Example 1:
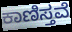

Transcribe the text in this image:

ಕಾಣಿಸ್ತವೆ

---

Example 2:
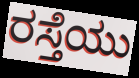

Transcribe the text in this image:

ರಸ್ತೆಯು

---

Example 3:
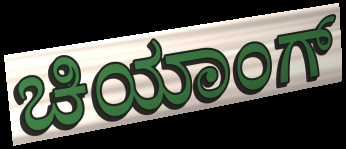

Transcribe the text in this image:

ಚಿಯಾಂಗ್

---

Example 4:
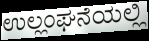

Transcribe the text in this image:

ಉಲ್ಲಂಘನೆಯಲ್ಲಿ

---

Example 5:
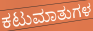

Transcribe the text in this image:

ಕಟುಮಾತುಗಳ